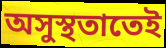
অসুস্থতাতেই